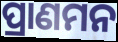
ପ୍ରାଣମନ